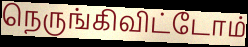
நெருங்கிவிட்டோம்